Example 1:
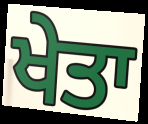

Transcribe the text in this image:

ਖੇਤਾ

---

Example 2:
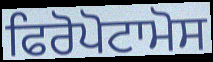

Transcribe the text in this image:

ਫਿਰੋਪੋਟਾਮੋਸ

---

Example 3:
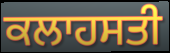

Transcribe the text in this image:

ਕਲਾਹਸਤੀ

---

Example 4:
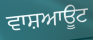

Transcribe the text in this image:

ਵਾਸ਼ਆਊਟ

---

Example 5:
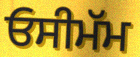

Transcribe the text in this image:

ਓਸੀਮੱਮ